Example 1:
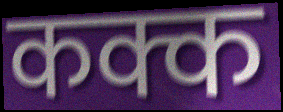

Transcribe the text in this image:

कक्क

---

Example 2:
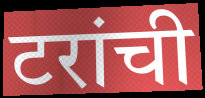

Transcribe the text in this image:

टरांची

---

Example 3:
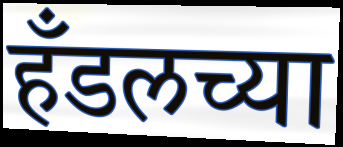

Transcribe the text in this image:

हँडलच्या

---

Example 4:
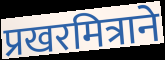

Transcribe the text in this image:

प्रखरमित्राने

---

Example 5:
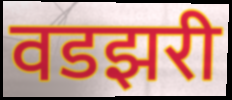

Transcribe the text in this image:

वडझरी